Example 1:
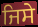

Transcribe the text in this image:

ਜਿਸੇ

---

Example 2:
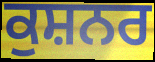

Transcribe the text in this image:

ਕੁਸ਼ਨਰ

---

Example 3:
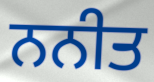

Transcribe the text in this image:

ਨਨੀਤ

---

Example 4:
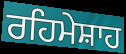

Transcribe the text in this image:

ਰਹਿਮੇਸ਼ਾਹ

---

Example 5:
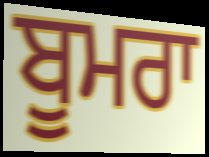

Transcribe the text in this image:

ਬੂਮਰਾ